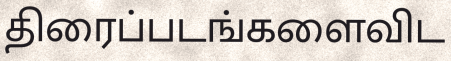
திரைப்படங்களைவிட